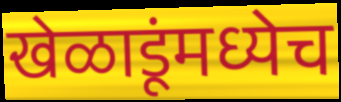
खेळाडूंमध्येच